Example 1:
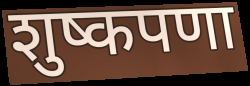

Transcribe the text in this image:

शुष्कपणा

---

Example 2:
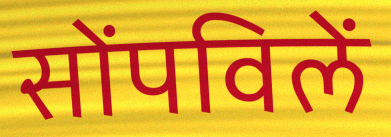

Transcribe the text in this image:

सोंपविलें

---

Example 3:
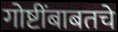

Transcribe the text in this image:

गोष्टींबाबतचे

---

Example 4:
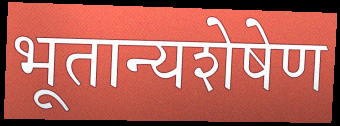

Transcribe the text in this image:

भूतान्यशेषेण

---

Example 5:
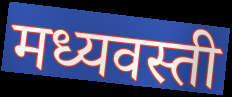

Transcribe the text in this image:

मध्यवस्ती